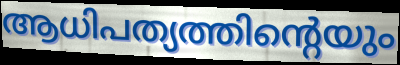
ആധിപത്യത്തിന്റെയും